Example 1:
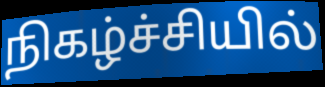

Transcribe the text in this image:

நிகழ்ச்சியில்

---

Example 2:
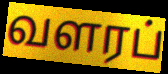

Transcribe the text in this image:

வளரப்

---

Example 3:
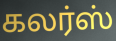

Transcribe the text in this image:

கலர்ஸ்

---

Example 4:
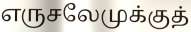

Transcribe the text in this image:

எருசலேமுக்குத்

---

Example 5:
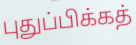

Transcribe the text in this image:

புதுப்பிக்கத்